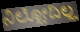
ನಿಲ್ಲೋದಿಲ್ಲ